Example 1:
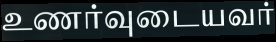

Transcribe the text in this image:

உணர்வுடையவர்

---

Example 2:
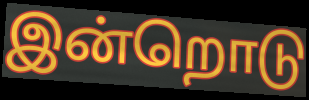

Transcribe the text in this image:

இன்றொடு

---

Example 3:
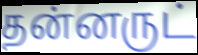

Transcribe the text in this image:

தன்னருட்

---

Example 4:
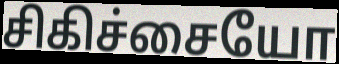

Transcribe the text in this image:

சிகிச்சையோ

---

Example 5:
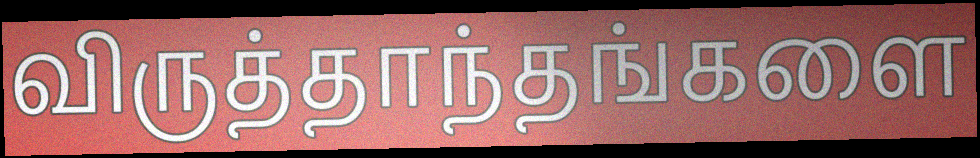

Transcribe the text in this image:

விருத்தாந்தங்களை